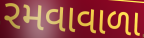
રમવાવાળા